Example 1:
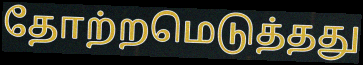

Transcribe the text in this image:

தோற்றமெடுத்தது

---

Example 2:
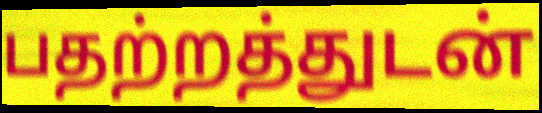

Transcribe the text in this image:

பதற்றத்துடன்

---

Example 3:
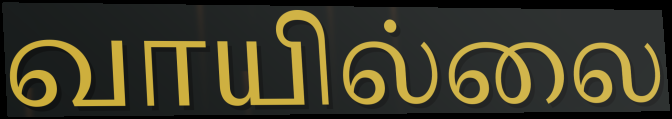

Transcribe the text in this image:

வாயில்லை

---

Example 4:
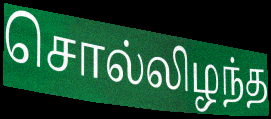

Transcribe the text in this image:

சொல்லிழந்த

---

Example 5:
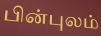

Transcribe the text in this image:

பின்புலம்